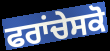
ਫਰਾਂਚੇਸਕੋ